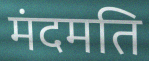
मंदमति